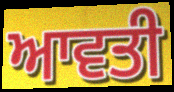
ਆਵਤੀ